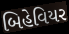
બિહેવિયર